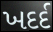
ખદર્દ